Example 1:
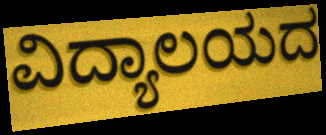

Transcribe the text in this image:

ವಿದ್ಯಾಲಯದ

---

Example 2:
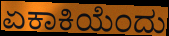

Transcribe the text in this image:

ಏಕಾಕಿಯೆಂದು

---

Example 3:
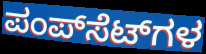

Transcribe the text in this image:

ಪಂಪ್‌ಸೆಟ್‌ಗಳ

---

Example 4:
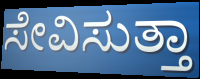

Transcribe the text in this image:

ಸೇವಿಸುತ್ತಾ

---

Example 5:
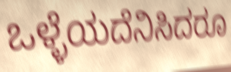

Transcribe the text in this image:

ಒಳ್ಳೆಯದೆನಿಸಿದರೂ